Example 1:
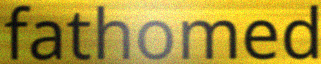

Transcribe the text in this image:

fathomed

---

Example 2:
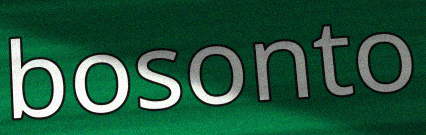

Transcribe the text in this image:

bosonto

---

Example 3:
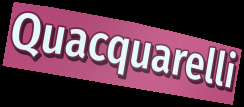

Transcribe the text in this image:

Quacquarelli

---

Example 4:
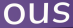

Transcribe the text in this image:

ous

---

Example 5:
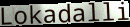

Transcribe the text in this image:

Lokadalli